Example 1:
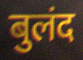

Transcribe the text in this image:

बुलंद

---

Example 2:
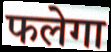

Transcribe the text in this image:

फलेगा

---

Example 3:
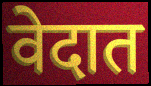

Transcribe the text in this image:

वेदात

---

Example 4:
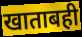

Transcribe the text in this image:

खाताबही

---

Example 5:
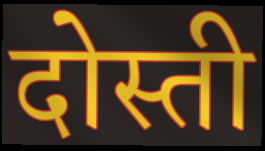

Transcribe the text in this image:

दोस्ती